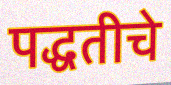
पद्धतीचे